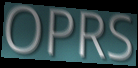
OPRS